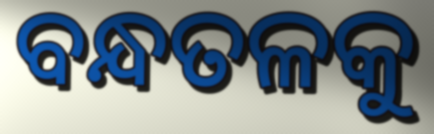
ବନ୍ଧତଳକୁ